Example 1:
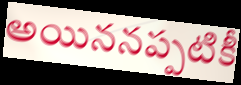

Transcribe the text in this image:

అయిననప్పటికీ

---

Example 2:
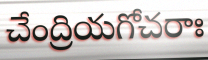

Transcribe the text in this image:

చేంద్రియగోచరాః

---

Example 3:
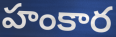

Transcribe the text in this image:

హంకార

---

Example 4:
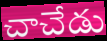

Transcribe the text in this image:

చాచేడు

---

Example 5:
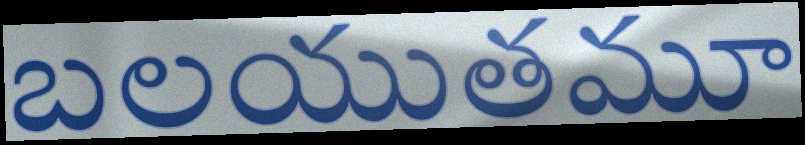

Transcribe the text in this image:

బలయుతమూ